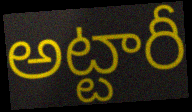
అట్టారీ